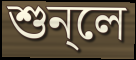
শুন্লে